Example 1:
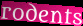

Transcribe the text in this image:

rodents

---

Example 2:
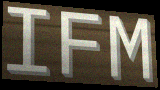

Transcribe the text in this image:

IFM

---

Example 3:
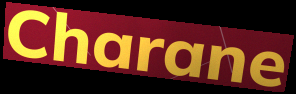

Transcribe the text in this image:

Charane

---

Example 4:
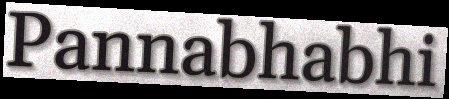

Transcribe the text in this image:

Pannabhabhi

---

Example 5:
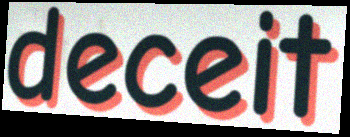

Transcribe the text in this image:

deceit